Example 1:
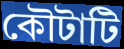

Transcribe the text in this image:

কৌটাটি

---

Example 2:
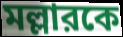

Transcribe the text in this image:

মল্লারকে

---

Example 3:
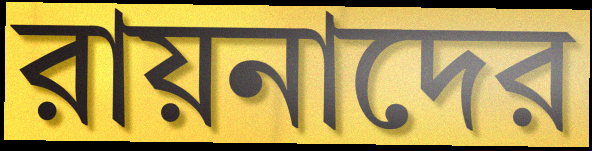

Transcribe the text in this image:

রায়নাদের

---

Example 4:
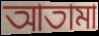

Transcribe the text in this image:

আতামা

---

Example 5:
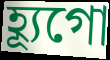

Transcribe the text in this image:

হ্যূগো